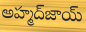
అహ్మద్‌జాయ్